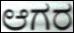
ಆಗರ